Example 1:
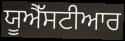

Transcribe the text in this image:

ਯੂਐੱਸਟੀਆਰ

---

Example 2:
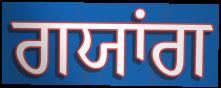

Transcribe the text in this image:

ਗਯਾਂਗ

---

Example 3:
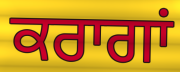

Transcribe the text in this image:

ਕਰਾਗਾਂ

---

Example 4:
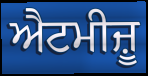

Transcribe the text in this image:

ਐਟਮੀਜ਼ੂ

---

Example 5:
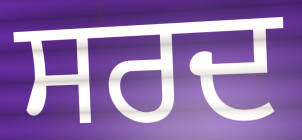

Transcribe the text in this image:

ਸਰਦ